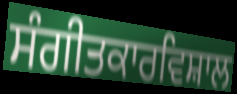
ਸੰਗੀਤਕਾਰਵਿਸ਼ਾਲ